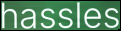
hassles